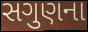
સગુણના